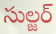
సుల్జర్